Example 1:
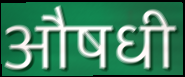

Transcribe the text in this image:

औषधी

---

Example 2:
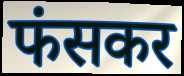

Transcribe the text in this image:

फंसकर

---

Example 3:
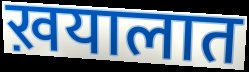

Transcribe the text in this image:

ख़यालात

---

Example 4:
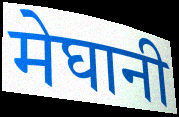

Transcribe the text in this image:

मेघानी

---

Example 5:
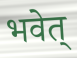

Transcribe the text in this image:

भवेत्